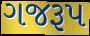
ગજરૂપ